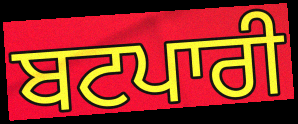
ਬਟਪਾਰੀ